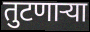
तुटणार्‍या